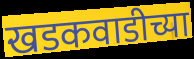
खडकवाडीच्या